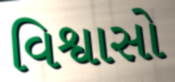
વિશ્વાસો